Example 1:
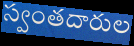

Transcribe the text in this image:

స్వంతదారుల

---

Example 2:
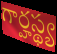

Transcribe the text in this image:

గార్హస్థ్య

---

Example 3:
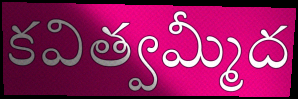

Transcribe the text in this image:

కవిత్వమ్మీద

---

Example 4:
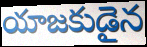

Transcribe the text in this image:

యాజకుడైన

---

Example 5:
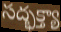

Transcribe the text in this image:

సద్భక్త్యా